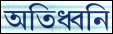
অতিধ্বনি